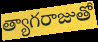
త్యాగరాజుతో